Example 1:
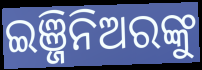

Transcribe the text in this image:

ଇଞ୍ଜିନିଅରଙ୍କୁ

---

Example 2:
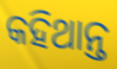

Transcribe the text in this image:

କହିଥାନ୍ତ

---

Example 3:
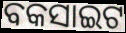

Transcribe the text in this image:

ବକସାଇଟ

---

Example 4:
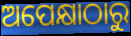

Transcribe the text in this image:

ଅପେକ୍ଷାଠାରୁ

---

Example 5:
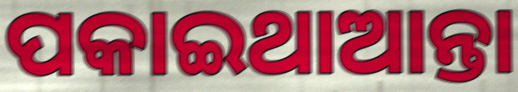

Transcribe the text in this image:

ପକାଇଥାଆନ୍ତା